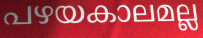
പഴയകാലമല്ല